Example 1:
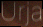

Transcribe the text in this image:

Urja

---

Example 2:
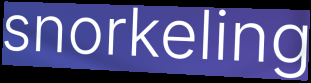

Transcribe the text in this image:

snorkeling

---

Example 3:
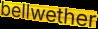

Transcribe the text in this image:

bellwether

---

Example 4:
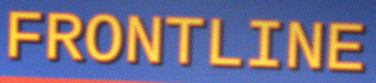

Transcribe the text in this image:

FRONTLINE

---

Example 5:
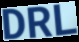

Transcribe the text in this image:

DRL